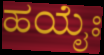
ಹಯೈಃ